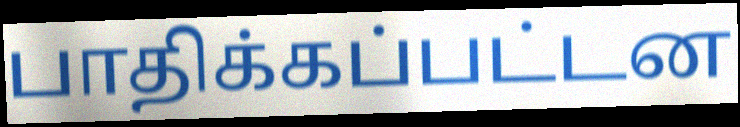
பாதிக்கப்பட்டன